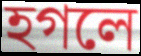
হগলে